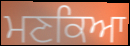
ਮਣਕਿਆ